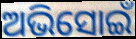
ଅଭିସୋଇଁ